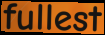
fullest